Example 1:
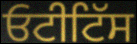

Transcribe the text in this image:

ਓਟੀਟਿੱਸ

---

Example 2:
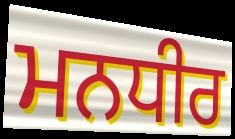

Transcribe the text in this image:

ਮਨਧੀਰ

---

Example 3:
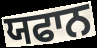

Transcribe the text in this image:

ਯਫਾਨ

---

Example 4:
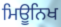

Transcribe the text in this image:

ਮਿਊਨਿਖ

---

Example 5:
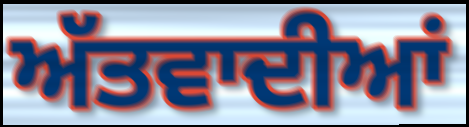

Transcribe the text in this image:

ਅੱਤਵਾਦੀਆਂ